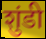
शुंडी